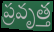
ప్రవృత్త